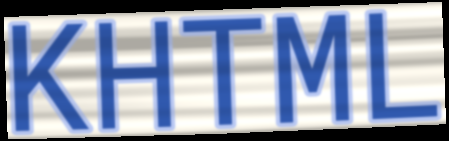
KHTML